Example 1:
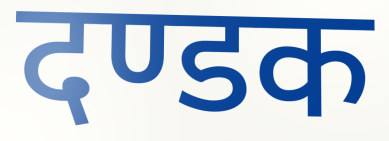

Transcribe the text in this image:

दण्डक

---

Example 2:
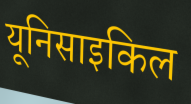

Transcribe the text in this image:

यूनिसाइकिल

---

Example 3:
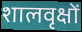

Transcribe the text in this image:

शालवृक्षों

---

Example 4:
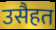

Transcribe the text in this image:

उसैहत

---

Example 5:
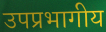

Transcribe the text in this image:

उपप्रभागीय